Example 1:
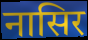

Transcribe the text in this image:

नासिर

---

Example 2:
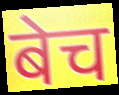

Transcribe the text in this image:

बेच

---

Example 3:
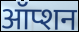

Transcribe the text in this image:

ऑप्‍शन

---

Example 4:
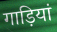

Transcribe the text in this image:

गाड़ियां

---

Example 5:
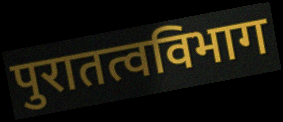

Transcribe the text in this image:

पुरातत्वविभाग